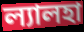
ল্যালহা